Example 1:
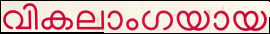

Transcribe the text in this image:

വികലാംഗയായ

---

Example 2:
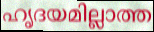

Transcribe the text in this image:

ഹൃദയമില്ലാത്ത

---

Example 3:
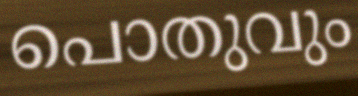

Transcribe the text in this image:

പൊതുവും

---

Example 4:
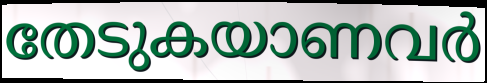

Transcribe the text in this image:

തേടുകയാണവർ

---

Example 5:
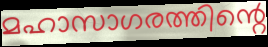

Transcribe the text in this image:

മഹാസാഗരത്തിന്റെ